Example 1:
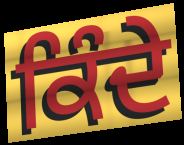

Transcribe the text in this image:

ਕਿੰਦੇ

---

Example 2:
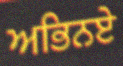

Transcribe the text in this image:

ਅਭਿਨਏ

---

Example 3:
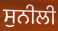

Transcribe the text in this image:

ਸੁਨੀਲੀ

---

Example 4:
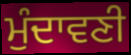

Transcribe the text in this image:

ਮੁੰਦਾਵਣੀ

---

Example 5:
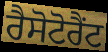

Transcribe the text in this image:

ਰੈਸੋਟੋਰੈਂਟ